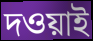
দওয়াই